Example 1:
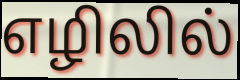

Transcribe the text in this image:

எழிலில்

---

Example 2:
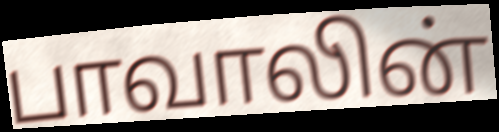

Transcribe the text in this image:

பாவாலின்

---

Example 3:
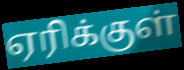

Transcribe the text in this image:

ஏரிக்குள்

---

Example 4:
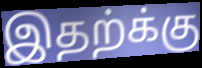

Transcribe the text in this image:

இதற்க்கு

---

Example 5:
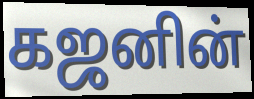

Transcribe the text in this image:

கஜனின்